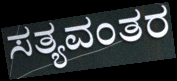
ಸತ್ಯವಂತರ